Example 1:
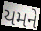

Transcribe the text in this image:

યમને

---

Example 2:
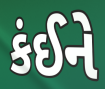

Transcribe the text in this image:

કંઈને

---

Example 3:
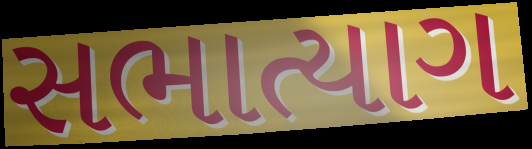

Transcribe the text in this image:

સભાત્યાગ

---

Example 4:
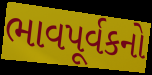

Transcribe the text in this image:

ભાવપૂર્વકનો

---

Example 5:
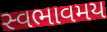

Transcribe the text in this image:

સ્વભાવમય